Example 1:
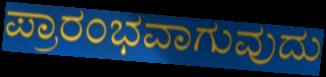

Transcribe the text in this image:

ಪ್ರಾರಂಭವಾಗುವುದು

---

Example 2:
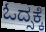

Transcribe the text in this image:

ಓದ್ಸಕ್ಕೆ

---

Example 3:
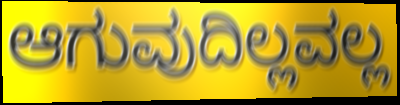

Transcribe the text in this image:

ಆಗುವುದಿಲ್ಲವಲ್ಲ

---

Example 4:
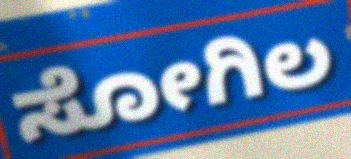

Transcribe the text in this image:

ಸೋಗಿಲ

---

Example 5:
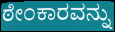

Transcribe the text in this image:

ಠೇಂಕಾರವನ್ನು